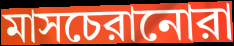
মাসচেরানোরা